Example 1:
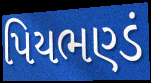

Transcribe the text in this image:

પિયભણ્ડં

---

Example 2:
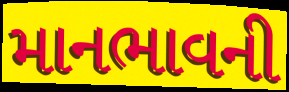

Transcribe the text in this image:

માનભાવની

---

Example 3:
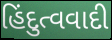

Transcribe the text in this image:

હિંદુત્વવાદી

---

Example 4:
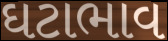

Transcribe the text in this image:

ઘટાભાવ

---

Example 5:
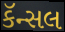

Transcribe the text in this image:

કૅન્સલ